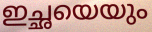
ഇച്ഛയെയും